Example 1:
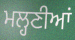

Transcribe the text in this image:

ਮਲ੍ਹਣੀਆਂ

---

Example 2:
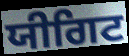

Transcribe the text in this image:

ਯੀਗਿਟ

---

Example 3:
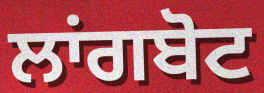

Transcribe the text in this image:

ਲਾਂਗਬੋਟ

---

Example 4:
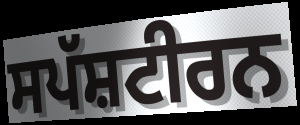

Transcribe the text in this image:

ਸਪੱਸ਼ਟੀਰਨ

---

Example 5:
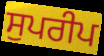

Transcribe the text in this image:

ਸੁਪਰੀਪ